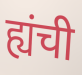
ह्यंची